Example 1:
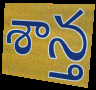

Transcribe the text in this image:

శాన్త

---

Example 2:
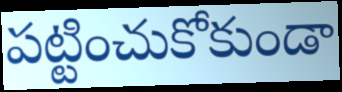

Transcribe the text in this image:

పట్టించుకోకుండా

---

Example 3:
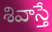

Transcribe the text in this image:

శివాస్తే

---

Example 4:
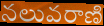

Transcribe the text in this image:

నలువరాణి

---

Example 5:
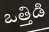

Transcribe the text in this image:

ఒత్తిడి